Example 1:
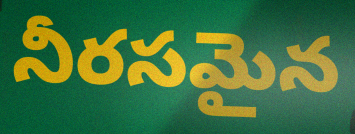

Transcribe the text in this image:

నీరసమైన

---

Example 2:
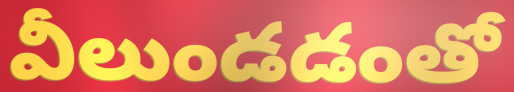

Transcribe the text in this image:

వీలుండడంతో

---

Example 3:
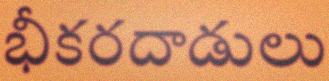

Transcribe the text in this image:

భీకరదాడులు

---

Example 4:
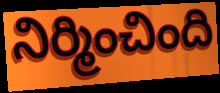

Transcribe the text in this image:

నిర్మించింది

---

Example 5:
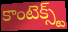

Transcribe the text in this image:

కాంటెక్స్ట్